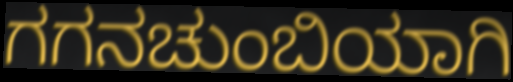
ಗಗನಚುಂಬಿಯಾಗಿ